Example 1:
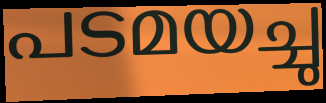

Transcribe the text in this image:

പടമയച്ചു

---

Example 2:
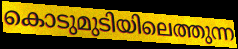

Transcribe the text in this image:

കൊടുമുടിയിലെത്തുന്ന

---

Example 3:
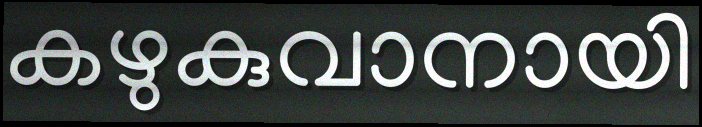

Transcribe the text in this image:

കഴുകുവാനായി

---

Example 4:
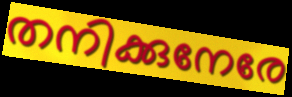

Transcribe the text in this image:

തനിക്കുനേരേ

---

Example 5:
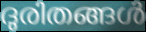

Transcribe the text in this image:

ദുരിതങ്ങൾ